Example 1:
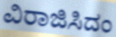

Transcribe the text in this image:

ವಿರಾಜಿಸಿದಂ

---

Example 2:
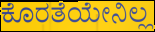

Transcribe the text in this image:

ಕೊರತೆಯೇನಿಲ್ಲ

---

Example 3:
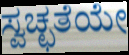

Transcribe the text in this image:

ಸ್ವಚ್ಛತೆಯೇ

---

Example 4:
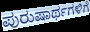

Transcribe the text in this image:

ಪುರುಷಾರ್ಥಗಳಿಗೆ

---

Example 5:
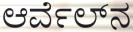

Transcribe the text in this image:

ಆರ್ವೆಲ್‍ನ